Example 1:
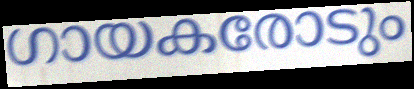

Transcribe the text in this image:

ഗായകരോടും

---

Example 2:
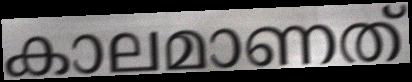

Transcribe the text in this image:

കാലമാണത്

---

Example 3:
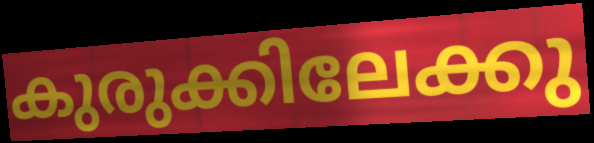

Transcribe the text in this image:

കുരുക്കിലേക്കു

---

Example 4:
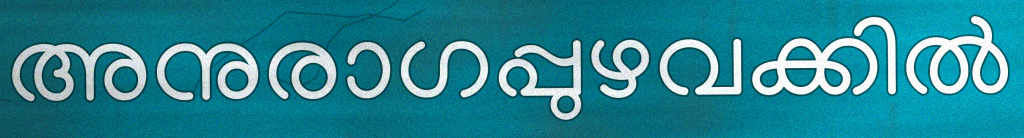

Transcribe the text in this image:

അനുരാഗപ്പുഴവക്കിൽ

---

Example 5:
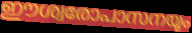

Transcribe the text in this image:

ഈശ്വരോപാസനയും